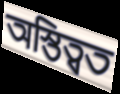
অস্তিত্বত